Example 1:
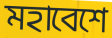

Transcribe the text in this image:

মহাবেশে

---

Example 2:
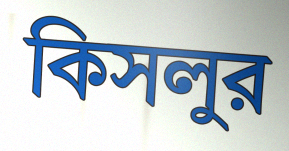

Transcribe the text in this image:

কিসলুর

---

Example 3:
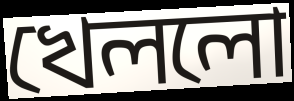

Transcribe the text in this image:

খেললো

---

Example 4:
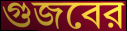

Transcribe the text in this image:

গুজবের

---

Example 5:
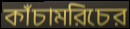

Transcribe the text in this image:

কাঁচামরিচের